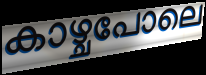
കാഴ്ചപോലെ